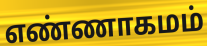
எண்ணாகமம்